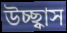
উচ্ছ্বাস